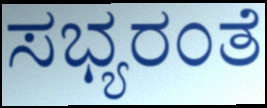
ಸಭ್ಯರಂತೆ